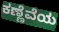
ಕಣ್ಣೆವೆಯ